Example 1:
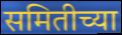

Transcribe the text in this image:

समितीच्‍या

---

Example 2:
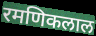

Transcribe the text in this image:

रमणिकलाल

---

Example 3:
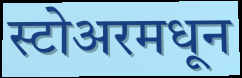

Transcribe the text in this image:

स्टोअरमधून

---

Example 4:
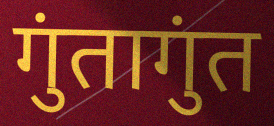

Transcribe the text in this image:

गुंतागुंत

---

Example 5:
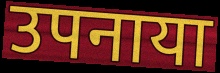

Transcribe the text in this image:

उपनाया